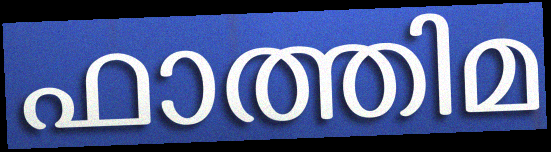
ഫാത്തിമ